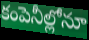
కంపెనీల్లోనూ